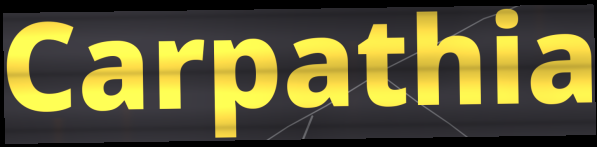
Carpathia